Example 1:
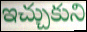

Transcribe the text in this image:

ఇచ్చుకుని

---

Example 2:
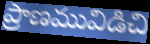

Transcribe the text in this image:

ప్రాణమువిడిచి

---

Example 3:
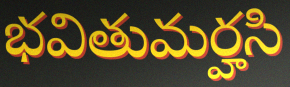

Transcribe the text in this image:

భవితుమర్హసి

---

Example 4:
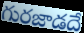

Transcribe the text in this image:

గురజాడదే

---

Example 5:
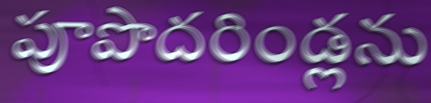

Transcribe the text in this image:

పూపొదరిండ్లను